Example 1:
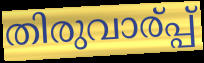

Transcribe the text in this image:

തിരുവാര്പ്പ്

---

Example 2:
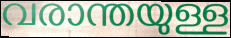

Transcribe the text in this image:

വരാന്തയുള്ള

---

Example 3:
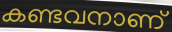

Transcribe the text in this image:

കണ്ടവനാണ്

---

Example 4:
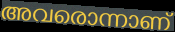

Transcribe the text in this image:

അവരൊന്നാണ്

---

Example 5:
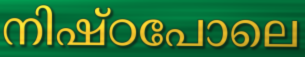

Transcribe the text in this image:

നിഷ്ഠപോലെ